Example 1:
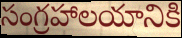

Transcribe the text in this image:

సంగ్రహాలయానికి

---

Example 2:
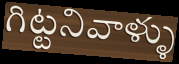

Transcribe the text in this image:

గిట్టనివాళ్ళు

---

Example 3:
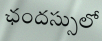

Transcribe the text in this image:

ఛందస్సులో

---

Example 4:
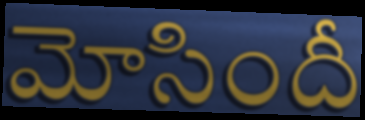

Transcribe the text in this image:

మోసిందీ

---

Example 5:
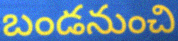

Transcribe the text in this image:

బండనుంచి